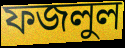
ফজলুল